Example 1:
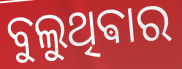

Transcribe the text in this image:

ବୁଲୁଥିଵାର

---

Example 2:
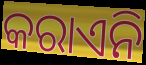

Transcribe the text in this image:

କରାଏନି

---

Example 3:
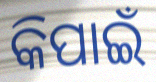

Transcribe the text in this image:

କିପାଇଁ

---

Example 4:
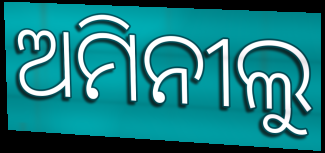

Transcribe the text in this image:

ଅମିନୀଲୁ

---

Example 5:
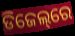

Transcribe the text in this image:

ଡିଜେଲ୍‌ରେ